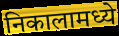
निकालामध्ये